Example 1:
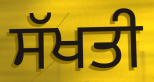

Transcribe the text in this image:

ਸੱਖਤੀ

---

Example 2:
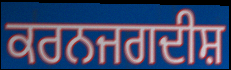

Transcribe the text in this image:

ਕਰਨਜਗਦੀਸ਼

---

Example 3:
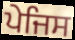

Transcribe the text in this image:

ਪੇਜਿਸ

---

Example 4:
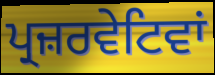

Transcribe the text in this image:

ਪ੍ਰਜ਼ਰਵੇਟਿਵਾਂ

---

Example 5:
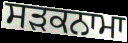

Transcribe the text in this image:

ਸਡ਼ਕਨਾਮਾ